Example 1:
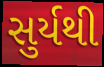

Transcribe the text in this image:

સુર્યથી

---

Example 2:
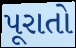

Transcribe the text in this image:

પૂરાતો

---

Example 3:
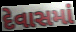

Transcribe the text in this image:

દેવાસમાં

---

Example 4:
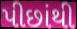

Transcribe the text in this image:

પીછાંથી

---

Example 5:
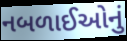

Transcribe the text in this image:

નબળાઈઓનું